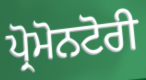
ਪ੍ਰੋਮੋਨਟੋਰੀ